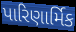
પારિણાર્મિક